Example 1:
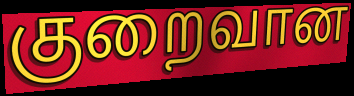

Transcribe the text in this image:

குறைவான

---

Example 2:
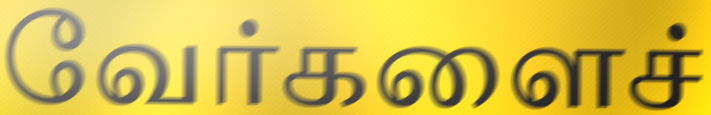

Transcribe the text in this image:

வேர்களைச்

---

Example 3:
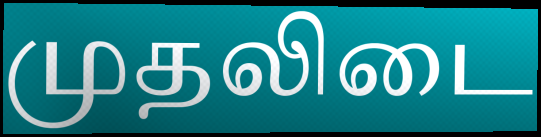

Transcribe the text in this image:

முதலிடை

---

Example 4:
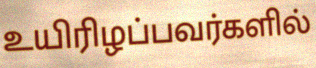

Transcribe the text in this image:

உயிரிழப்பவர்களில்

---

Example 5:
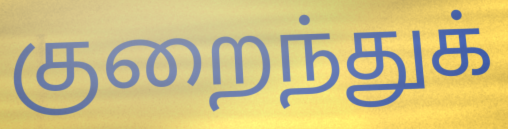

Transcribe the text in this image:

குறைந்துக்